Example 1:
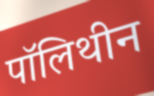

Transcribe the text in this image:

पॉलिथीन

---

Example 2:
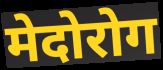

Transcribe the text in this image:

मेदोरोग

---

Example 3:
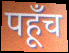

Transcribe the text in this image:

पहूँच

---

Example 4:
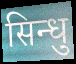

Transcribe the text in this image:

सिन्धु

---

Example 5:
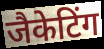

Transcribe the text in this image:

जैकेटिंग